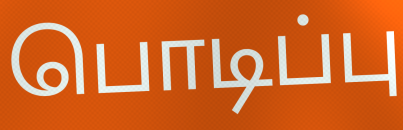
பொடிப்பு